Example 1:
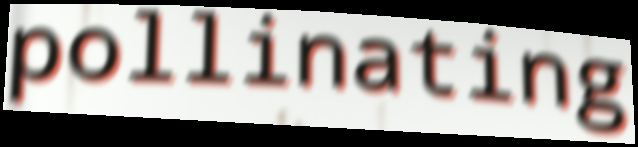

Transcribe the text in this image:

pollinating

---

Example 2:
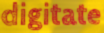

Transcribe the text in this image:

digitate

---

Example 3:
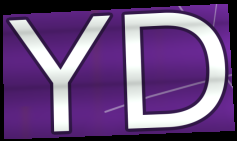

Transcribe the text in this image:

YD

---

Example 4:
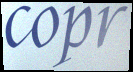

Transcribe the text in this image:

copr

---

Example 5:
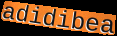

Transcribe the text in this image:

adidibea